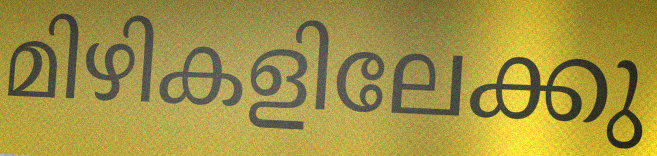
മിഴികളിലേക്കു